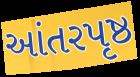
આંતરપૃષ્ઠ